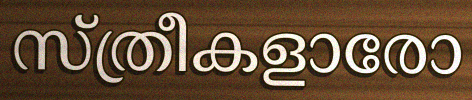
സ്ത്രീകളാരോ